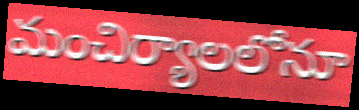
మంచిర్యాలలోనూ